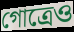
গোত্রেও